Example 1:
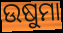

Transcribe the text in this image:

ଉଷୁମା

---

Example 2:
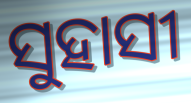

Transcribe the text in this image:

ସୁହାସୀ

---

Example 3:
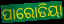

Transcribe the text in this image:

ପାରୋଡିୟା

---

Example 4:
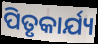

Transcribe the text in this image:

ପିତୃକାର୍ଯ୍ୟ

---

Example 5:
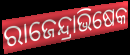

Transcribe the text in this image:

ରାଜେନ୍ଦ୍ରାଭିଷେକ